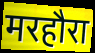
मरहौरा